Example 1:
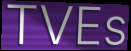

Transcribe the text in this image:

TVEs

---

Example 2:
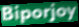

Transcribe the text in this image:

Biporjoy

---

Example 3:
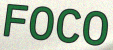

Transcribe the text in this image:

FOCO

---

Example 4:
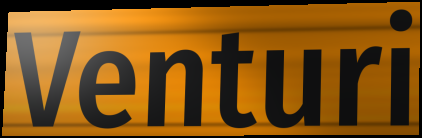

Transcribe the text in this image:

Venturi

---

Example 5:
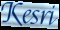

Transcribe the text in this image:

Kesri